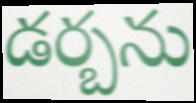
డర్బను